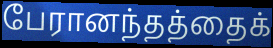
பேரானந்தத்தைக்